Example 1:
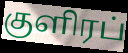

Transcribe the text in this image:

குளிரப்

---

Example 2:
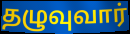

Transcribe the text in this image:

தழுவுவார்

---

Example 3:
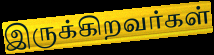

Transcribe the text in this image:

இருக்கிறவர்கள்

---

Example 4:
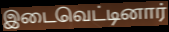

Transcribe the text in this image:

இடைவெட்டினார்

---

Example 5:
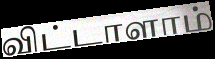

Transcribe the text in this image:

விட்டாளாம்